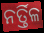
ନର୍ତ୍ତିଳ